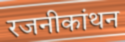
रजनीकांथन